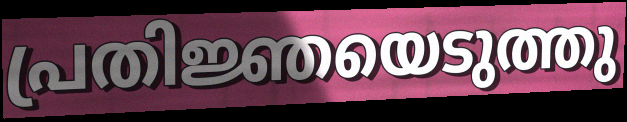
പ്രതിജ്ഞയെടുത്തു